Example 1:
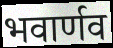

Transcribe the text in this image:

भवार्णव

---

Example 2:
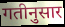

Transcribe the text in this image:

गतीनुसार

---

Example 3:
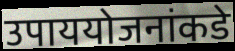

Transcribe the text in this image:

उपाययोजनांकडे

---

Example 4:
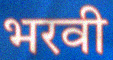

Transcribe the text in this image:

भरवी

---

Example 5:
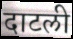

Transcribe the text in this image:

दाटली